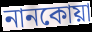
নানকোয়া